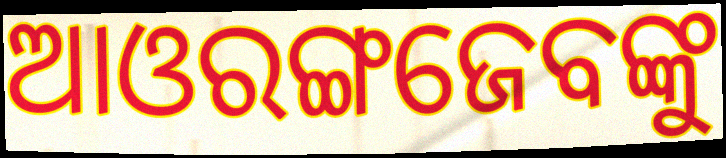
ଆଓରଙ୍ଗଜେବଙ୍କୁ